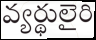
వ్యర్థులైరి